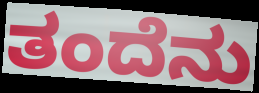
ತಂದೆನು